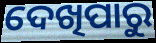
ଦେଖିପାରୁ